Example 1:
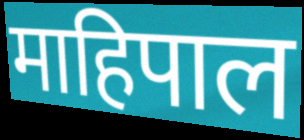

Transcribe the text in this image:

माहिपाल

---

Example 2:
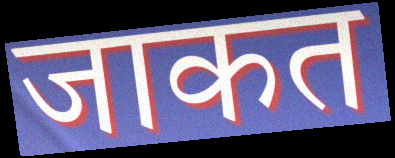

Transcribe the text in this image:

जाकत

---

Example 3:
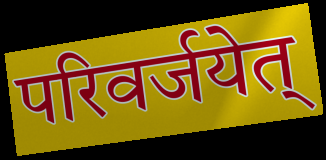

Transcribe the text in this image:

परिवर्जयेत्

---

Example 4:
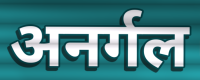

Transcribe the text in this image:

अनर्गल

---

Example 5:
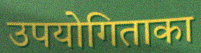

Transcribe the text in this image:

उपयोगिताका